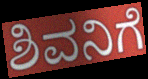
ಶಿವನಿಗೆ